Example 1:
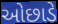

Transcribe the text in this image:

ઓછાડે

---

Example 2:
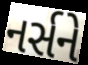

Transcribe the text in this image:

નર્સને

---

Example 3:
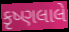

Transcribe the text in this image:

કૃષ્ણલાલે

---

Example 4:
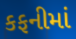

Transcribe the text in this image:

કફનીમાં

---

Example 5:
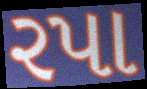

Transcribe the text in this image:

રપા